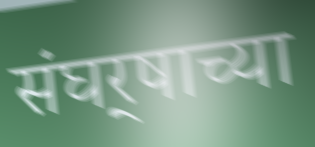
संघर्षाच्या